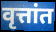
वृत्तांत